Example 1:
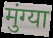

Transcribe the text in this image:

मुंग्या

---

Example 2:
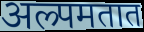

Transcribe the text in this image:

अल्पमतात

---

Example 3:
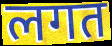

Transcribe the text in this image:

लगत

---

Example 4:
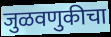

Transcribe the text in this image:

जुळवणुकीचा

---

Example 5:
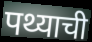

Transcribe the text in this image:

पथ्याची